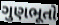
ગુણભૂતો